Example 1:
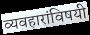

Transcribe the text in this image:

व्यवहारांविषयी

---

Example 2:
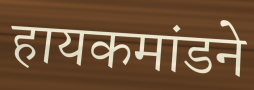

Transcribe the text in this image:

हायकमांडने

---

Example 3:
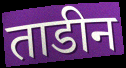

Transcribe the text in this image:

ताडीन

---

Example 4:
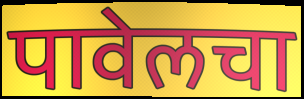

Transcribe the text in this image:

पावेलचा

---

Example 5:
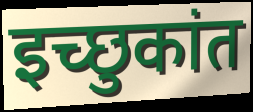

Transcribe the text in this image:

इच्छुकांत